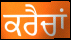
ਕਰੈਚਾਂ